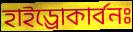
হাইড্রোকার্বনঃ